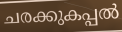
ചരക്കുകപ്പൽ